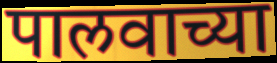
पालवाच्या